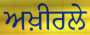
ਅਖ਼ੀਰਲੇ